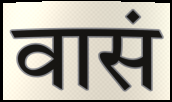
वासं